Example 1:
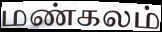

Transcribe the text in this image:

மண்கலம்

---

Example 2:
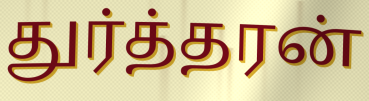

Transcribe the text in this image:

துர்த்தரன்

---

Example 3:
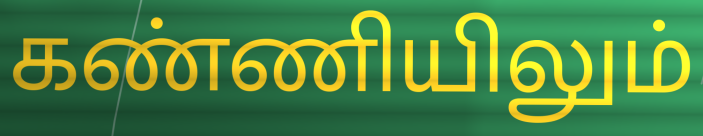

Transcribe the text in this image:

கண்ணியிலும்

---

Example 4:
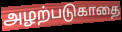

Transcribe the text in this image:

அழற்படுகாதை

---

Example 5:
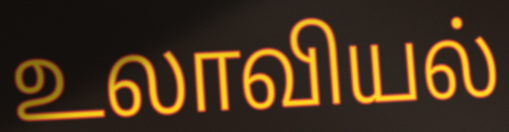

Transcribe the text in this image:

உலாவியல்